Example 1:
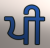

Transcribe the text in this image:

ਪੀ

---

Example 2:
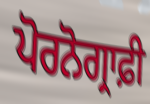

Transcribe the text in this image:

ਪੋਰਨੋਗ੍ਰਾਫ਼ੀ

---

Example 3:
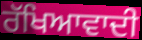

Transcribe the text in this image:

ਰੱਖਿਆਵਾਦੀ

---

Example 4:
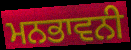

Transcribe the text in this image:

ਮਨਭਾਵਨੀ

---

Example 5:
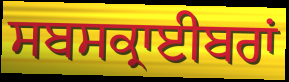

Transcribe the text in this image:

ਸਬਸਕ੍ਰਾਈਬਰਾਂ